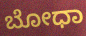
ಬೋಧಾ